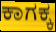
ಕಾಗಕ್ಕ